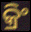
କ୍ରିଂ